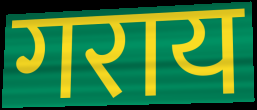
गराय